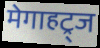
मेगाहट्र्ज